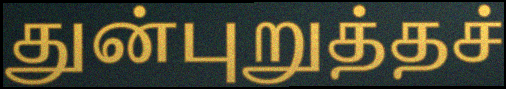
துன்புறுத்தச்